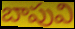
బాపువి